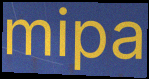
mipa